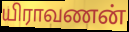
யிராவணன்